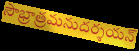
సౌభ్రాత్రమనుదర్శయన్